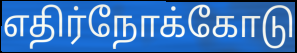
எதிர்நோக்கோடு